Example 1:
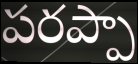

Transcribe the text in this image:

పరప్పా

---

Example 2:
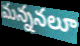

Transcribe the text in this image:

మన్ననలూ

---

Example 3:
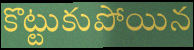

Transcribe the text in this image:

కొట్టుకుపోయిన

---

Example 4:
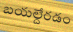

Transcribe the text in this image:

బయల్దేరడం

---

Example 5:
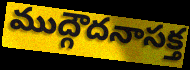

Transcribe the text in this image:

ముద్గౌదనాసక్త